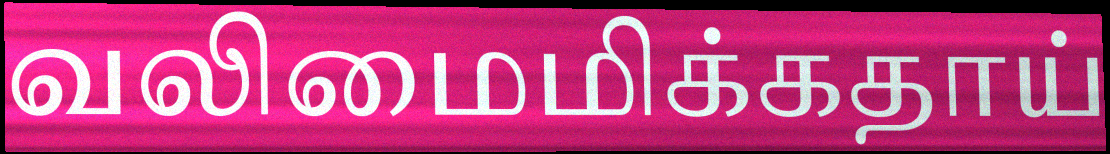
வலிமைமிக்கதாய்